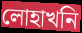
লোহাখনি